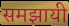
समझायी